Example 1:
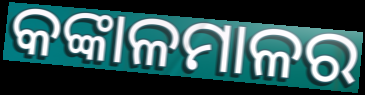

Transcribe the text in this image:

କଙ୍କାଳମାଳର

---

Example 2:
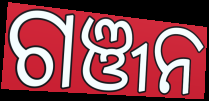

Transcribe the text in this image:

ଗଞ୍ଜନ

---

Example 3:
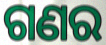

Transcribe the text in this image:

ଗଣର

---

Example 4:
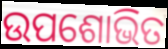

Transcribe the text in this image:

ଉପଶୋଭିତ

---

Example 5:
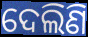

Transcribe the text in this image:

ଦେଲିଣି